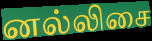
னல்லிசை